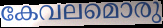
കേവലമൊരു